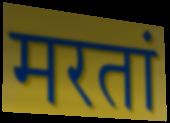
मरतां